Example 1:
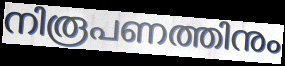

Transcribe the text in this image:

നിരൂപണത്തിനും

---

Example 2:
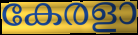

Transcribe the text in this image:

കേരളാ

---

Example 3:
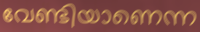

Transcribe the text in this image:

വേണ്ടിയാണെന്ന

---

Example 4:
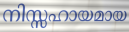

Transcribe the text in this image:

നിസ്സഹായമായ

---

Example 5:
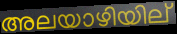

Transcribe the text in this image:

അലയാഴിയില്